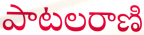
పాటలరాణి